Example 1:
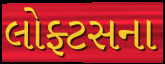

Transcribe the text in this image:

લોફ્ટસના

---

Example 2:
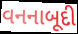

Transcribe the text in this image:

વનનાબૂદી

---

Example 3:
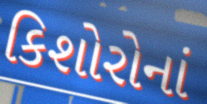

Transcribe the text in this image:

કિશોરોનાં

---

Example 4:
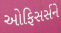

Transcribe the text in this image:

ઓફિસર્સને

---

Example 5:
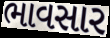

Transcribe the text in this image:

ભાવસાર